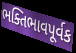
ભક્તિભાવપૂર્વક